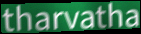
tharvatha